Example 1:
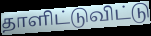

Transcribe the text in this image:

தாளிட்டுவிட்டு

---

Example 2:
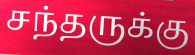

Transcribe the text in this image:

சந்தருக்கு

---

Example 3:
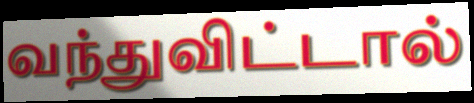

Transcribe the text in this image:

வந்துவிட்டால்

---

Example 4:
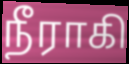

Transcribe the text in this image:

நீராகி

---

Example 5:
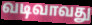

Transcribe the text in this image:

வடிவாவது